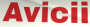
Avicii